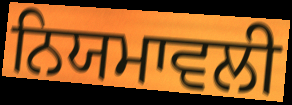
ਨਿਯਮਾਵਲੀ